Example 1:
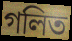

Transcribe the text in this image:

গলিত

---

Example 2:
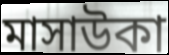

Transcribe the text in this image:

মাসাউকা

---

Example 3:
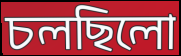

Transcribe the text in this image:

চলছিলো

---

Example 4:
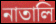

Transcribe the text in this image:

নাতালি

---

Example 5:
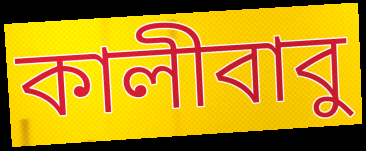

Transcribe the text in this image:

কালীবাবু